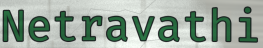
Netravathi